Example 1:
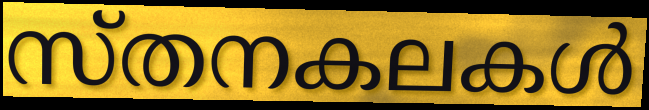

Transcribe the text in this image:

സ്തനകലകൾ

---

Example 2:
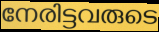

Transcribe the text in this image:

നേരിട്ടവരുടെ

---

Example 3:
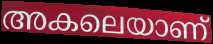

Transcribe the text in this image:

അകലെയാണ്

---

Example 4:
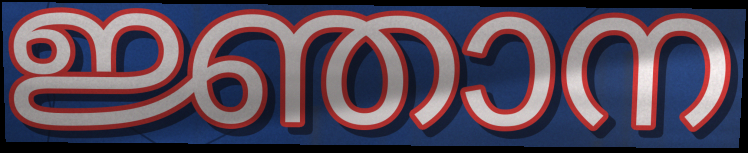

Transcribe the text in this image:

ജ്ഞാന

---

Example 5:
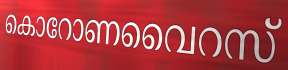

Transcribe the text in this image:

കൊറോണവൈറസ്